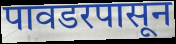
पावडरपासून